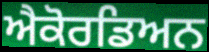
ਐਕੋਰਡਿਅਨ